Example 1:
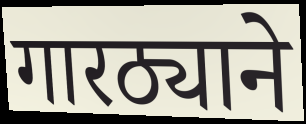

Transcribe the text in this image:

गारठ्याने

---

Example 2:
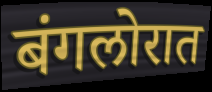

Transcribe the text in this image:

बंगलोरात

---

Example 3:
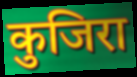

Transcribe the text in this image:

कुजिरा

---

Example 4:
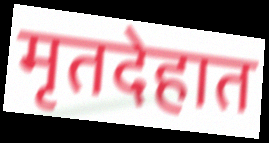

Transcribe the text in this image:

मृतदेहात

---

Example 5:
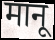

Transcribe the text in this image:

मानू